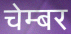
चेम्बर